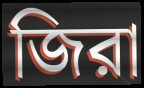
জিরা